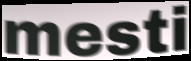
mesti